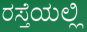
ರಸ್ತೆಯಲ್ಲಿ